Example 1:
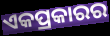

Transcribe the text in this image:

ଏକପ୍ରକାରର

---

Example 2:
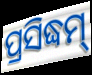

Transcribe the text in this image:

ପ୍ରସିଦ୍ଧମ୍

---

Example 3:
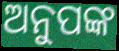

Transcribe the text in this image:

ଅନୁପଙ୍କ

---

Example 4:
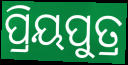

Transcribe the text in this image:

ପ୍ରିୟପୁତ୍ର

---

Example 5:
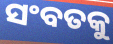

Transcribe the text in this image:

ସଂବତକୁ